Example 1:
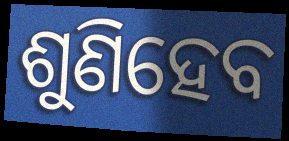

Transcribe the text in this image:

ଶୁଣିହେବ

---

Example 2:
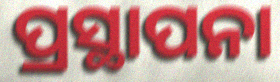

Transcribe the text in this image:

ପ୍ରସ୍ଥାପନା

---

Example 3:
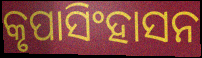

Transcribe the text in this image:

କୃପାସିଂହାସନ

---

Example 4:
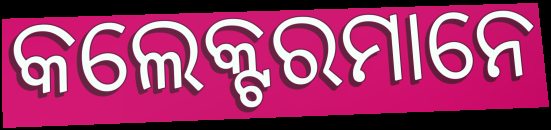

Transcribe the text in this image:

କଲେକ୍ଟରମାନେ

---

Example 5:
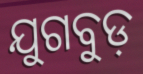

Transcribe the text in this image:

ଯୁଗବୁଡ଼